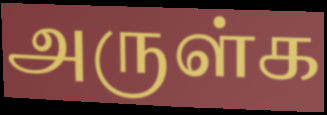
அருள்க